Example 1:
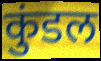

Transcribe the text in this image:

कुंडल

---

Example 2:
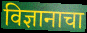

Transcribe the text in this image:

विज्ञानाचा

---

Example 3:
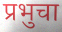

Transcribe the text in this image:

प्रभुचा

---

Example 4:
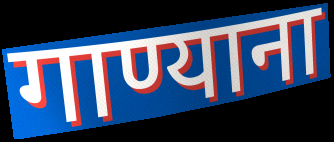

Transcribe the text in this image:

गाण्याना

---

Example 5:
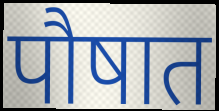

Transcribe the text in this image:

पौषात